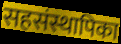
सहसंस्थापिका